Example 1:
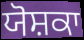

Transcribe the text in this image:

ਯੋਸ਼ਕਾ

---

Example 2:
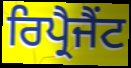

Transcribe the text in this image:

ਰਿਪ੍ਰੈਜੈਂਟ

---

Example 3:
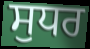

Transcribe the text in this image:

ਸੁਧਰ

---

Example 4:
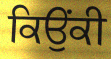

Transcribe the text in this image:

ਕਿਉਂਕੀ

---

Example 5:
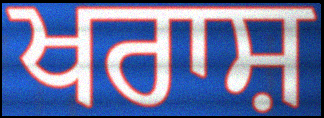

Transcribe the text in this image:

ਖਰਾਸ਼